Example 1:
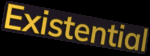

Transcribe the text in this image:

Existential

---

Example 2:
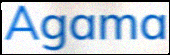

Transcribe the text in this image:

Agama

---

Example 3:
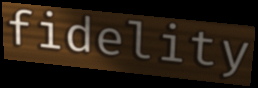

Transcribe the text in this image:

fidelity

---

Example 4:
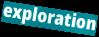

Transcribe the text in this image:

exploration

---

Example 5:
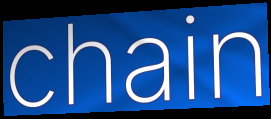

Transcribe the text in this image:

chain